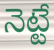
నెట్టే